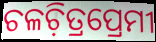
ଚଳଚ଼ିତ୍ରପ୍ରେମୀ